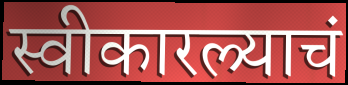
स्वीकारल्याचं